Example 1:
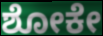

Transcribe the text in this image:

ಶೋಕೇ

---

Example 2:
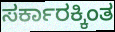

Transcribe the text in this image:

ಸರ್ಕಾರಕ್ಕಿಂತ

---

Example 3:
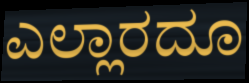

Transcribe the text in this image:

ಎಲ್ಲಾರದೂ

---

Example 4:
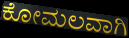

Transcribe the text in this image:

ಕೋಮಲವಾಗಿ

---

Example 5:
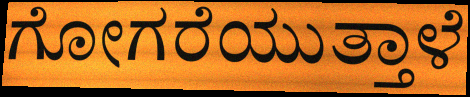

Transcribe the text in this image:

ಗೋಗರೆಯುತ್ತಾಳೆ